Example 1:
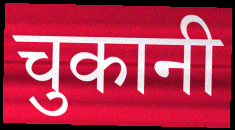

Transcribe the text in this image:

चुकानी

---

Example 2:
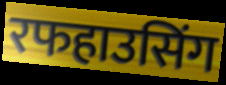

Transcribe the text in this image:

रफहाउसिंग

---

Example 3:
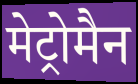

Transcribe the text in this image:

मेट्रोमैन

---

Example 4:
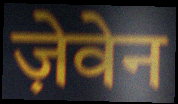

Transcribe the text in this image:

ज़ेवेन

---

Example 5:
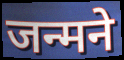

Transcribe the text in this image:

जन्मने